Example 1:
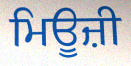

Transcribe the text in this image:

ਮਿਊਜ਼ੀ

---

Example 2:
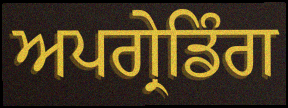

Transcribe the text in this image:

ਅਪਗ੍ਰੇਡਿੰਗ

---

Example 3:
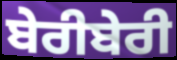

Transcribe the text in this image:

ਬੇਰੀਬੇਰੀ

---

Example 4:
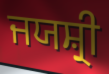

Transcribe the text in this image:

ਜਯਸ਼੍ਰੀ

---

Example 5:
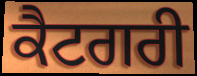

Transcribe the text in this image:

ਕੈਟਗਰੀ